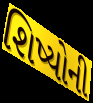
શિષ્યોની